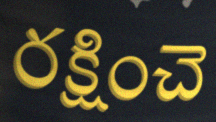
రక్షించె